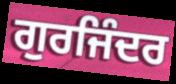
ਗੁਰਜਿੰਦਰ